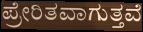
ಪ್ರೇರಿತವಾಗುತ್ತವೆ